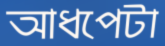
আধপেটা